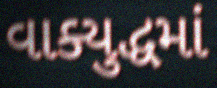
વાક્યુદ્ધમાં